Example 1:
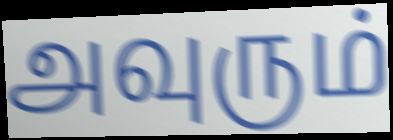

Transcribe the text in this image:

அவுரும்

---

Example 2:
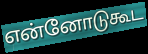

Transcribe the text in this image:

என்னோடுகூட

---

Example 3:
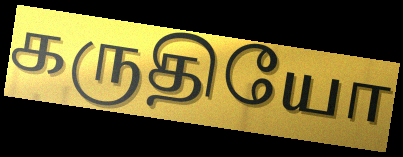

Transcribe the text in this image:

கருதியோ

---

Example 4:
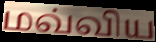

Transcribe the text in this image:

மவ்விய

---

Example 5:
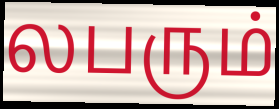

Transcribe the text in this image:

லபரும்